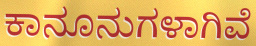
ಕಾನೂನುಗಳಾಗಿವೆ